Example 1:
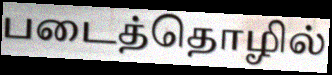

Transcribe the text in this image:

படைத்தொழில்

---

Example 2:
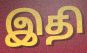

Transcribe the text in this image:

இதி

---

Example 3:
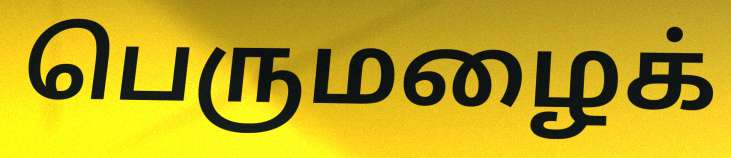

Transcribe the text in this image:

பெருமழைக்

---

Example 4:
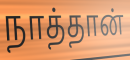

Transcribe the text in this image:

நாத்தான்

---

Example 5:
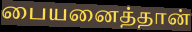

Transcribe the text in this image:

பையனைத்தான்